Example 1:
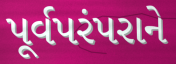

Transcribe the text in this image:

પૂર્વપરંપરાને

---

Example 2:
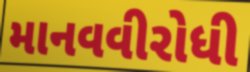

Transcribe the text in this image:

માનવવીરોધી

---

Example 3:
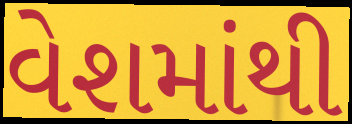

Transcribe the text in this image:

વેશમાંથી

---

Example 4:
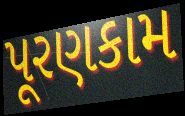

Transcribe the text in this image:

પૂરણકામ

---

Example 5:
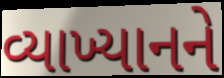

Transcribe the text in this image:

વ્યાખ્યાનને